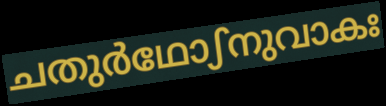
ചതുർഥോഽനുവാകഃ